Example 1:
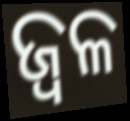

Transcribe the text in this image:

ଜ୍ୱଳ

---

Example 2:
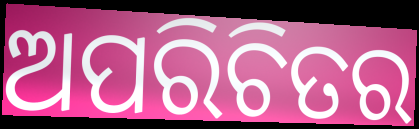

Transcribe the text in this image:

ଅପରିଚିତର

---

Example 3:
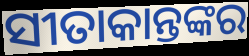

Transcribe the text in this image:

ସୀତାକାନ୍ତଙ୍କର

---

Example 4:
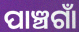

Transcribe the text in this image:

ପାଞ୍ଚଗାଁ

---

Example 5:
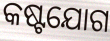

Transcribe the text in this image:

କଷ୍ଟଯୋଗ